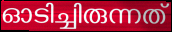
ഓടിച്ചിരുന്നത്